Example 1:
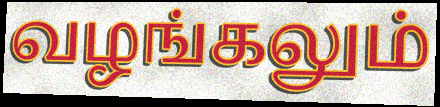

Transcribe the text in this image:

வழங்கலும்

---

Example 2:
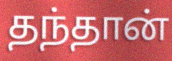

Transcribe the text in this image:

தந்தான்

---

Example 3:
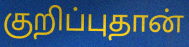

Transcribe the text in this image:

குறிப்புதான்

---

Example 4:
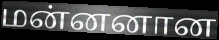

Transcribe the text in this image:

மன்னனான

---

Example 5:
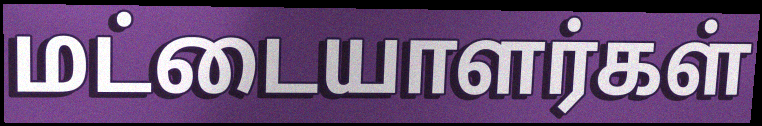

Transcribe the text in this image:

மட்டையாளர்கள்